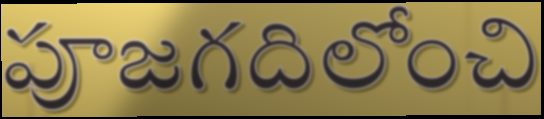
పూజగదిలోంచి